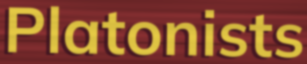
Platonists